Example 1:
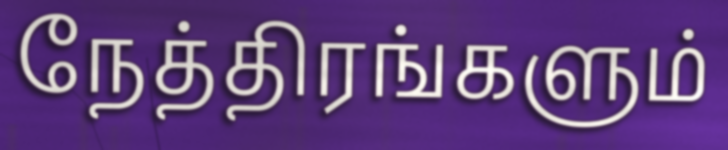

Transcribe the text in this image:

நேத்திரங்களும்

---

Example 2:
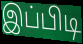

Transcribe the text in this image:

இப்பிடி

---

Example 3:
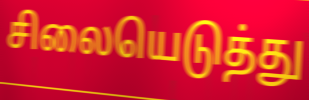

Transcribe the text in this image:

சிலையெடுத்து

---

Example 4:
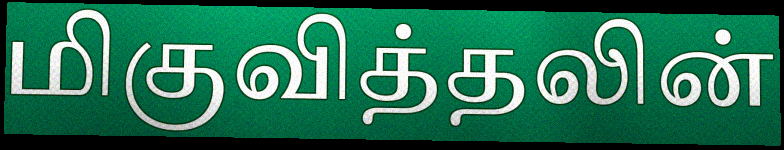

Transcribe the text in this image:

மிகுவித்தலின்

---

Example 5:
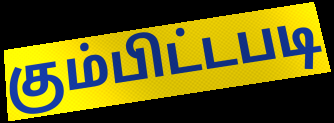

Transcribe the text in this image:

கும்பிட்டபடி